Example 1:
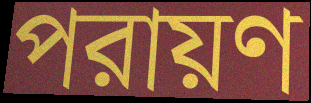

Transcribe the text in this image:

পরায়ণ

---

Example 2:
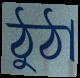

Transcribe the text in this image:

ঠুঠা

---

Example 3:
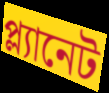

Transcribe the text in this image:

প্ল্যানেট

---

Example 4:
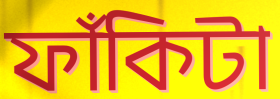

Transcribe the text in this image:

ফাঁকিটা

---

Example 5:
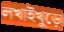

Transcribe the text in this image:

লখাইখুড়ো